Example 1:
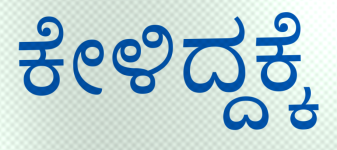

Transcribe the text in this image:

ಕೇಳಿದ್ದಕ್ಕೆ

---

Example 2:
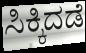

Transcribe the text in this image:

ಸಿಕ್ಕಿದಡೆ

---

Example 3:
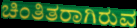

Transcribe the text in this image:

ಚಿಂತಿತರಾಗಿರುವ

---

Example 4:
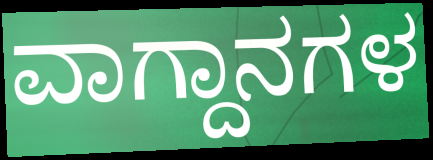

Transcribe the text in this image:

ವಾಗ್ದಾನಗಳ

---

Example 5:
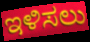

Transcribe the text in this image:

ಇಳಿಸಲು